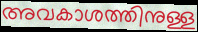
അവകാശത്തിനുള്ള